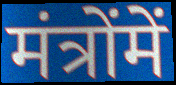
मंत्रोंमें